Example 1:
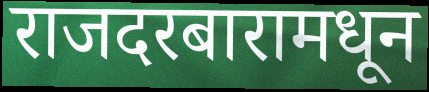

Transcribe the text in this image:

राजदरबारामधून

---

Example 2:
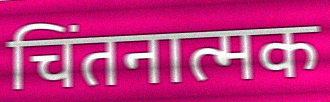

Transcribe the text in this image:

चिंतनात्मक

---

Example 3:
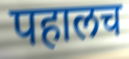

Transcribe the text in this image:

पहालच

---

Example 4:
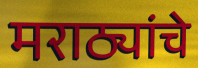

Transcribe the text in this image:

मराठ्यांचे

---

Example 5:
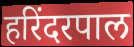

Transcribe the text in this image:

हरिंदरपाल